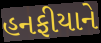
હનફીયાને